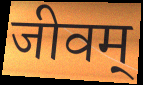
जीवम्